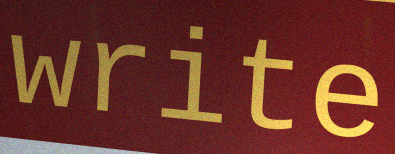
write